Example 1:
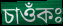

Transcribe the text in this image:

চাওঁকঃ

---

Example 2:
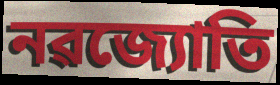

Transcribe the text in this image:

নৱজ্যোতি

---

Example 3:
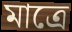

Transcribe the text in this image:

মাত্ৰে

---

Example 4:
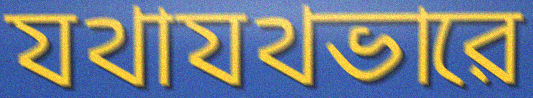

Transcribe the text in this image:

যথাযথভাৱে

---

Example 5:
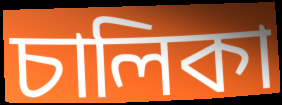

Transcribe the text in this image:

চালিকা